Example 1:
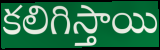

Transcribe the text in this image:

కలిగిస్తాయి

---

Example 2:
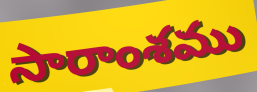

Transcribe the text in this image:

సారాంశము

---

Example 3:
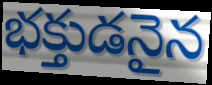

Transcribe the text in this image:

భక్తుడనైన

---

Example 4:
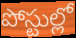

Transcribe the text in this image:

పోస్టుల్లో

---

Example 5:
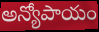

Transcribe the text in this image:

అన్యోపాయం